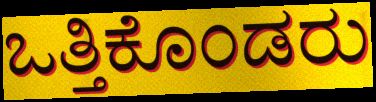
ಒತ್ತಿಕೊಂಡರು